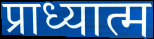
प्राध्यात्म